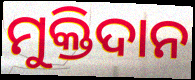
ମୁକ୍ତିଦାନ